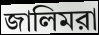
জালিমরা